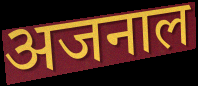
अजनाल